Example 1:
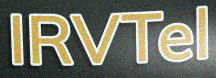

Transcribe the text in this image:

IRVTel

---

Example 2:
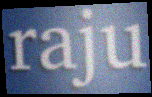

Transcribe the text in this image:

raju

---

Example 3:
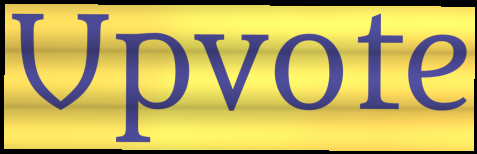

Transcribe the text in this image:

Upvote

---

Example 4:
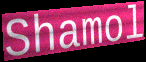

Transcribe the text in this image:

Shamol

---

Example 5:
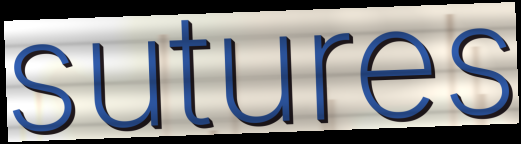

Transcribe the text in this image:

sutures